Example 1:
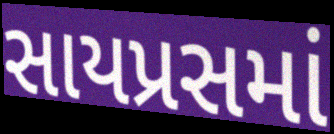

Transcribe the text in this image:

સાયપ્રસમાં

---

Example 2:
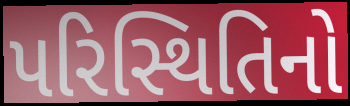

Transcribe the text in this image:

પરિસ્થિતિનો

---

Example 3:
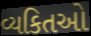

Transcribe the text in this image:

વ્યકિતઓ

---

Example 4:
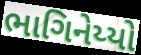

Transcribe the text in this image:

ભાગિનેય્યો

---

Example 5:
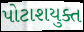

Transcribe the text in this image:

પોટાશયુક્ત